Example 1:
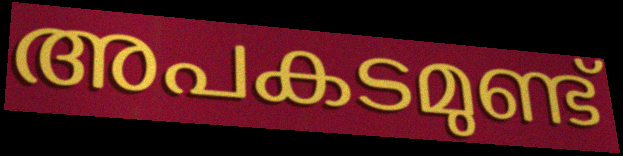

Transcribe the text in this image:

അപകടമുണ്ട്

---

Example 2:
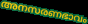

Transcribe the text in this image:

അനസരണഭാവം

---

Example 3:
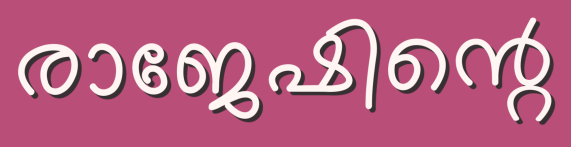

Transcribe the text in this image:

രാജേഷിന്റെ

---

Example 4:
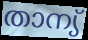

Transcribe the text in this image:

താന്യ്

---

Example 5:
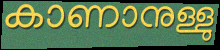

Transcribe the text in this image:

കാണാനുള്ളു